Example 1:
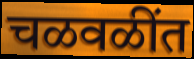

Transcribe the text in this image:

चळवळींत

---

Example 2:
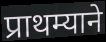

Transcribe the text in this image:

प्राथम्याने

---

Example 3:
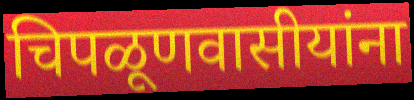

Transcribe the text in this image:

चिपळूणवासीयांना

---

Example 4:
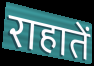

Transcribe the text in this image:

राहातें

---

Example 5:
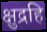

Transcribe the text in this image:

क्षुद्रहि